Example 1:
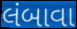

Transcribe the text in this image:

લંબાવા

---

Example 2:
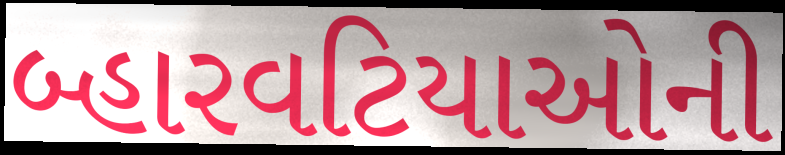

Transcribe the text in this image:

બ્હારવટિયાઓની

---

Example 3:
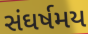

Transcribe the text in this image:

સંઘર્ષમય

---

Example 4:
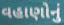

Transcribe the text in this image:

વહાણોનું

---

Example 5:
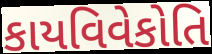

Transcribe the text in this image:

કાયવિવેકોતિ